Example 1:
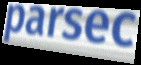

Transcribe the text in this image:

parsec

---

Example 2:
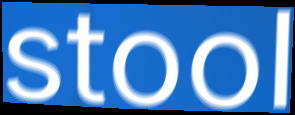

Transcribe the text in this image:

stool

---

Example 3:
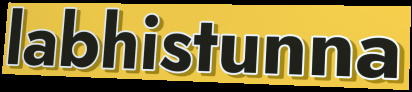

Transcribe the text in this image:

labhistunna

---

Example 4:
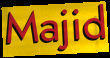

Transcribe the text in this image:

Majid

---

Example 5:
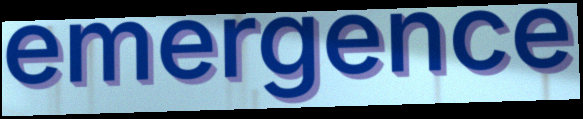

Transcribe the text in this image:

emergence